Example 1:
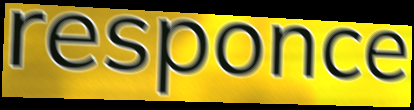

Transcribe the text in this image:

responce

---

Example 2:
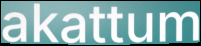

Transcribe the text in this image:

akattum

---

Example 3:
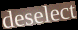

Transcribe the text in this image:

deselect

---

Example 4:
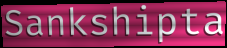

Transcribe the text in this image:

Sankshipta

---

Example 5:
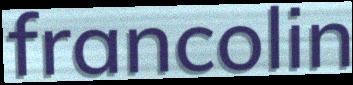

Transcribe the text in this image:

francolin